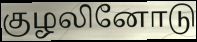
குழலினோடு